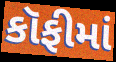
કૉફીમાં